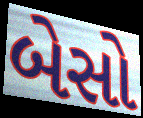
બેસો